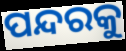
ପନ୍ଦରକୁ